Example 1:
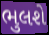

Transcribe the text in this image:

ભુલશે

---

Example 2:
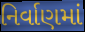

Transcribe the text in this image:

નિર્વાણમાં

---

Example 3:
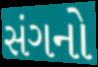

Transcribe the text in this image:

સંગનો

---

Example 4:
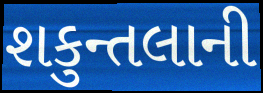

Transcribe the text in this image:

શકુન્તલાની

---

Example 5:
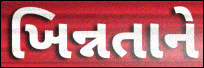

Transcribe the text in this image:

ખિન્નતાને